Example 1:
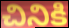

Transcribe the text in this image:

చినికి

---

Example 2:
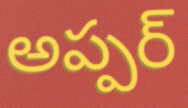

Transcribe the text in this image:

అప్పర్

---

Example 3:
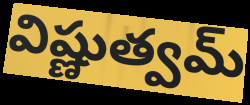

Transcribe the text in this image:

విష్ణుత్వమ్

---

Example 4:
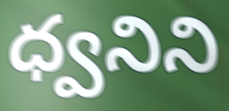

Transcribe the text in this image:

ధ్వనిని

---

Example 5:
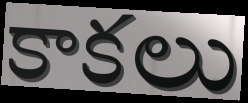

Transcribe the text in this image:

కాకలు